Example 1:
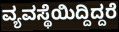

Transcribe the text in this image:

ವ್ಯವಸ್ಥೆಯಿದ್ದಿದ್ದರೆ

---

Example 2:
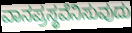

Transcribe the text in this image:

ವಾನಪ್ರಸ್ಥವೆನಿಸುವುದು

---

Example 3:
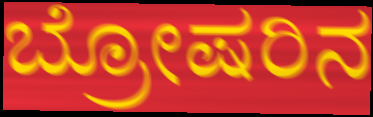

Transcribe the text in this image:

ಬ್ರೋಷರಿನ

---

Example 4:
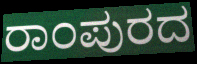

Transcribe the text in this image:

ರಾಂಪುರದ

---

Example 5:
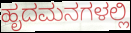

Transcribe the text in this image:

ಹೃದಮನಗಳಲ್ಲಿ